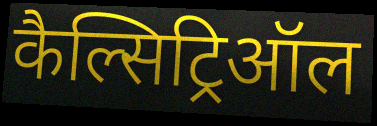
कैल्सिट्रिऑल